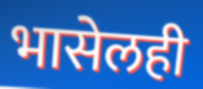
भासेलही